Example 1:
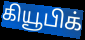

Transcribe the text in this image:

கியூபிக்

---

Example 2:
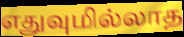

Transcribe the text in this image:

எதுவுமில்லாத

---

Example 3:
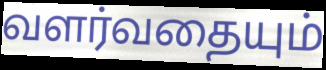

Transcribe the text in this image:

வளர்வதையும்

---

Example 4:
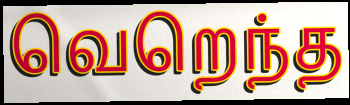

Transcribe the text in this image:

வெறெந்த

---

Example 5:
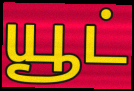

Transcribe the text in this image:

யூட்